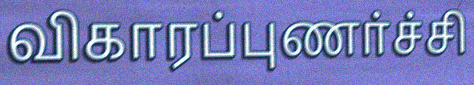
விகாரப்புணர்ச்சி